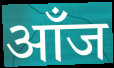
आँज